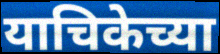
याचिकेच्या